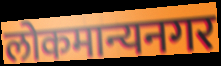
लोकमान्यनगर